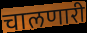
चालणारी